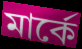
মার্কে